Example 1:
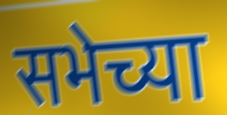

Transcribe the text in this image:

सभेच्या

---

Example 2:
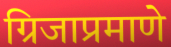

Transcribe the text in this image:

ग्रिजाप्रमाणे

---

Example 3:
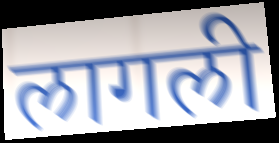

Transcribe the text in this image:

लागली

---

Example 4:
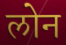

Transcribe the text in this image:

लोन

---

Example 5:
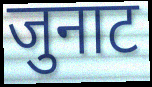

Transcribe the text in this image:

जुनाट